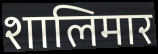
शालिमार